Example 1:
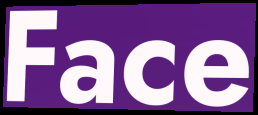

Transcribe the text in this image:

Face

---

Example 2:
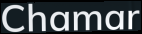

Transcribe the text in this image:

Chamar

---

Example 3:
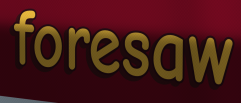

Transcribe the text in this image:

foresaw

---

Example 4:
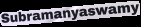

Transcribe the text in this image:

Subramanyaswamy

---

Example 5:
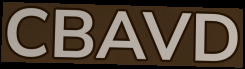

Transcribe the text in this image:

CBAVD